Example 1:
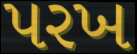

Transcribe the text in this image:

પરખ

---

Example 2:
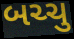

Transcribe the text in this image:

બચ્ચુ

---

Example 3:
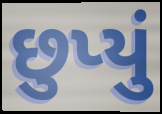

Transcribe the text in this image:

છુપ્યું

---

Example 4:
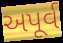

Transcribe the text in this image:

અપૂર્વ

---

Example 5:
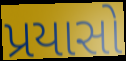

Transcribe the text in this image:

પ્રયાસો